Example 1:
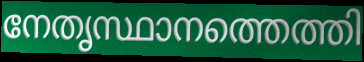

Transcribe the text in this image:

നേതൃസ്ഥാനത്തെത്തി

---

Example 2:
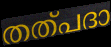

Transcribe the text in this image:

തത്പദാ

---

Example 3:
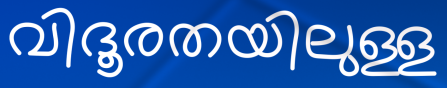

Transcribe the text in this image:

വിദൂരതയിലുള്ള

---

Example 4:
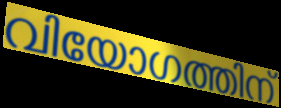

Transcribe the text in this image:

വിയോഗത്തിന്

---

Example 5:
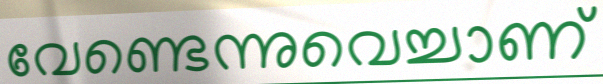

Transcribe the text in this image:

വേണ്ടെന്നുവെച്ചാണ്